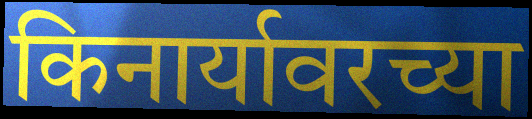
किनार्यावरच्या